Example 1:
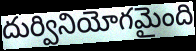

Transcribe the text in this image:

దుర్వినియోగమైంది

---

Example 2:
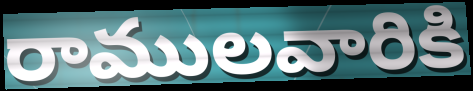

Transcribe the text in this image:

రాములవారికి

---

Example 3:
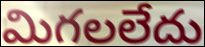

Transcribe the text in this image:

మిగలలేదు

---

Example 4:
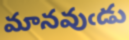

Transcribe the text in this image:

మానవుఁడు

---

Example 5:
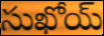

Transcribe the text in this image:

సుఖోయ్